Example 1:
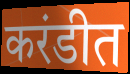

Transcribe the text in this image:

करंडीत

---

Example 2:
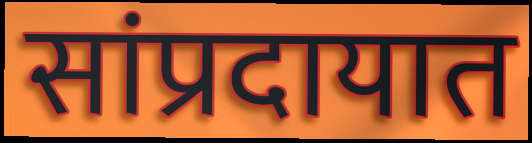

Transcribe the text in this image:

सांप्रदायात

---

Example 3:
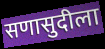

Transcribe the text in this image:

सणासुदीला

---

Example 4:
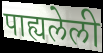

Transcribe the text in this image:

पाह्यलेली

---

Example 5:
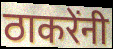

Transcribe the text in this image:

ठाकरेंनी